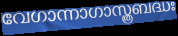
വേഗാന്നാഗാസ്ത്രബദ്ധഃ